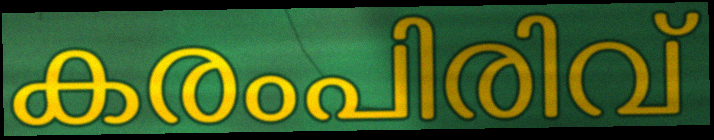
കരംപിരിവ്